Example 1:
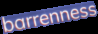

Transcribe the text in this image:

barrenness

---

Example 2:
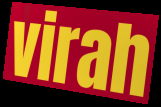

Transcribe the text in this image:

virah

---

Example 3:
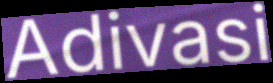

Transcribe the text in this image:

Adivasi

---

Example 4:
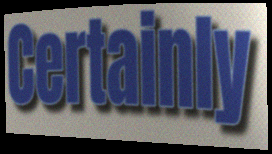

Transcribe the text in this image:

Certainly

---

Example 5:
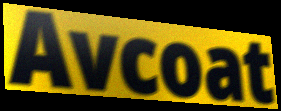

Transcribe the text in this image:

Avcoat